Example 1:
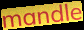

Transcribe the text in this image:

mandle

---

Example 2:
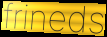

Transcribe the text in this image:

frineds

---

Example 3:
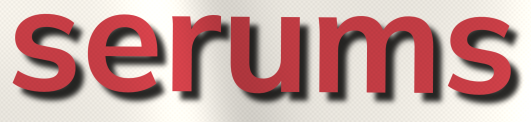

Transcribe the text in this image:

serums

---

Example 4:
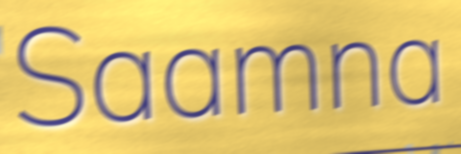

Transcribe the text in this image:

Saamna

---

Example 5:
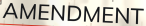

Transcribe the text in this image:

AMENDMENT